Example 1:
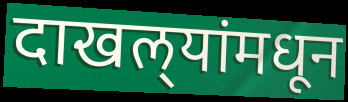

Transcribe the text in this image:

दाखल्यांमधून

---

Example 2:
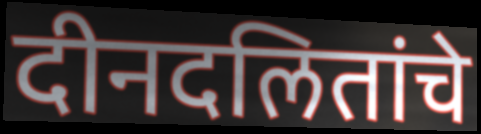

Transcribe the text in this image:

दीनदलितांचे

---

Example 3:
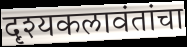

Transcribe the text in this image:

दृश्यकलावंतांचा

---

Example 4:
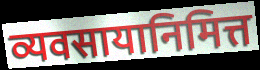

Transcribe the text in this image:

व्यवसायानिमित्त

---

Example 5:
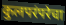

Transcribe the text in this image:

कुलपरंपरेचा